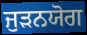
ਜੁੜਨਯੋਗ